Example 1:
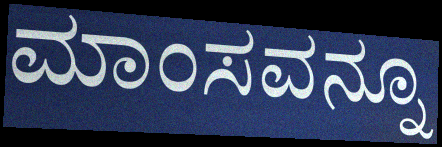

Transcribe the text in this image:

ಮಾಂಸವನ್ನೂ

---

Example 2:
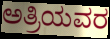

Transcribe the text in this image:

ಅತ್ರಿಯವರ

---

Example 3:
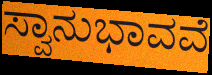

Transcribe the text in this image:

ಸ್ವಾನುಭಾವವೆ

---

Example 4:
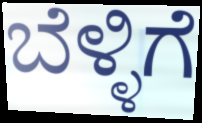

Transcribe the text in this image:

ಬೆಳ್ಳಿಗೆ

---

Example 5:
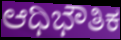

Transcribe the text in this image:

ಆಧಿಭೌತಿಕ